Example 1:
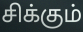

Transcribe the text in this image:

சிக்கும்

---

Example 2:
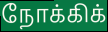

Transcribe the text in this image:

நோக்கிக்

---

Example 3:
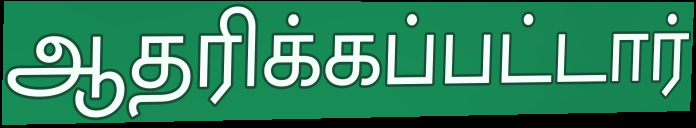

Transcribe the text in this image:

ஆதரிக்கப்பட்டார்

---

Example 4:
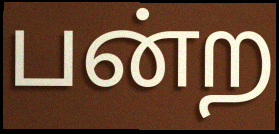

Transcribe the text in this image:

பன்ற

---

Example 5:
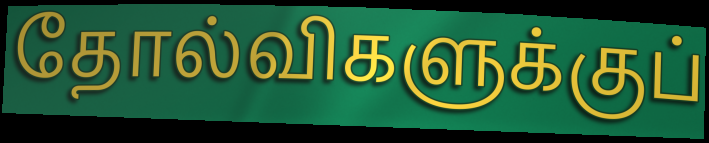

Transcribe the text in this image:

தோல்விகளுக்குப்